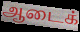
ஆடைக்